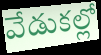
వేడుకల్లో